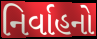
નિર્વાહનો